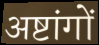
अष्टांगों